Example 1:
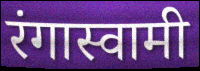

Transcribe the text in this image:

रंगास्वामी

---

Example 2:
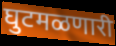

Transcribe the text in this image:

घुटमळणारी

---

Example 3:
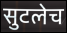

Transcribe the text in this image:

सुटलेच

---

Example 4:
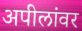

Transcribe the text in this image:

अपीलांवर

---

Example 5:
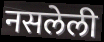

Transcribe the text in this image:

नसलेली